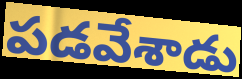
పడవేశాడు